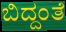
ಬಿದ್ದಂತೆ